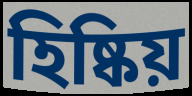
হিষ্কিয়